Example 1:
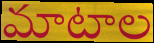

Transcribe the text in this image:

మాటాల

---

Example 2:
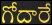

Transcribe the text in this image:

గోదారే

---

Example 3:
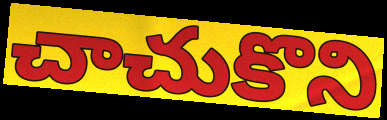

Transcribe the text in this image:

చాచుకొని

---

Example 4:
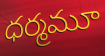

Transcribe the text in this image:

ధర్మమూ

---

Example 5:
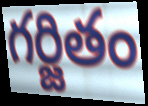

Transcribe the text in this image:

గర్జితం